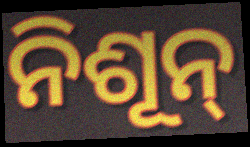
ନିଶୂନ୍